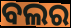
ବଲର